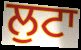
ਲੁਟਾ